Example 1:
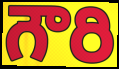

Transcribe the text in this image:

గౌరి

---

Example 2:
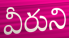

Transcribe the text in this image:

వీరుని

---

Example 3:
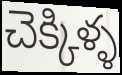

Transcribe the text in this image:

చెక్కిళ్ళ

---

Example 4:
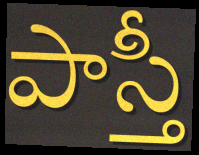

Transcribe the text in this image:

పాస్తీ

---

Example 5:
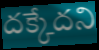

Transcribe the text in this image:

దక్కేదని